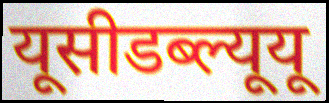
यूसीडब्ल्यूयू